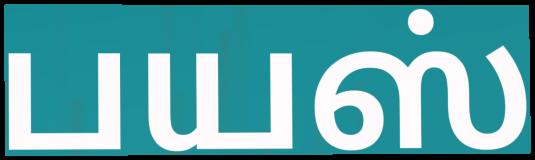
பயஸ்